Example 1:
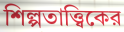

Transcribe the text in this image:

শিল্পতাত্ত্বিকের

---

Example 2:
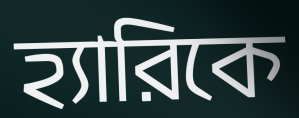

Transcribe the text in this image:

হ্যারিকে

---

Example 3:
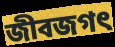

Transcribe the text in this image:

জীবজগৎ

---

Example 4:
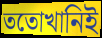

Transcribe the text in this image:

ততোখানিই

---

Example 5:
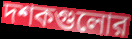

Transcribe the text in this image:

দশকগুলোর